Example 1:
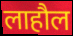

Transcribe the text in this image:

लाहौल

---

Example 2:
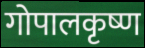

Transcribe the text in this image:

गोपालकृष्‍ण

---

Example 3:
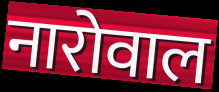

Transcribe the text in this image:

नारोवाल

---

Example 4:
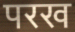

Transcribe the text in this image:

परख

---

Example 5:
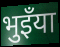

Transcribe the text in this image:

भुइँया